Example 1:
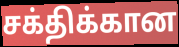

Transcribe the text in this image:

சக்திக்கான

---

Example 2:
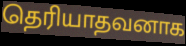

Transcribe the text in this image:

தெரியாதவனாக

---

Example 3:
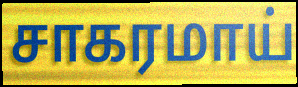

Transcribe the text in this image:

சாகரமாய்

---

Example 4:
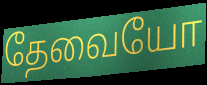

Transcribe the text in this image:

தேவையோ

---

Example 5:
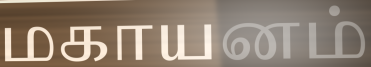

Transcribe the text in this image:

மகாயனம்